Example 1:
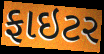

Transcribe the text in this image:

ફાઇટર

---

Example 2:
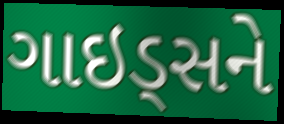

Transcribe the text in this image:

ગાઇડ્સને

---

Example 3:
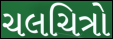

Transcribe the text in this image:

ચલચિત્રો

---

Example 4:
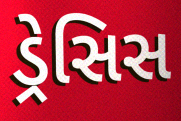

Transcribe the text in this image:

ડ્રેસિસ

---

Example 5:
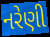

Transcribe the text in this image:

નરેણી